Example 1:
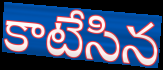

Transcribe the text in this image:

కాటేసిన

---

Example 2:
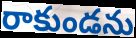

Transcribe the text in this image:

రాకుండను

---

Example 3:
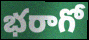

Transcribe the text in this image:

భరాగో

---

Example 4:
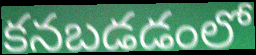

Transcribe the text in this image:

కనబడడంలో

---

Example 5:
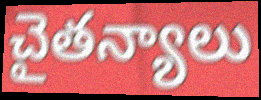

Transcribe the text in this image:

చైతన్యాలు